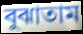
বুঝাতাম